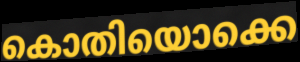
കൊതിയൊക്കെ